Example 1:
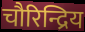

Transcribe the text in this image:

चौरिन्द्रिय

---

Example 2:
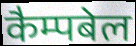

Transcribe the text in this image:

कैम्पबेल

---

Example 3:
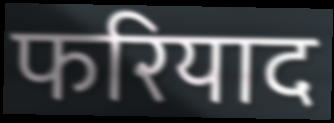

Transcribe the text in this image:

फरियाद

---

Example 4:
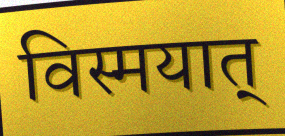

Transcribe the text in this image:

विस्मयात्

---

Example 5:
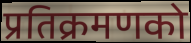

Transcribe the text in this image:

प्रतिक्रमणको